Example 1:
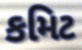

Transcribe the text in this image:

કમિટ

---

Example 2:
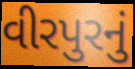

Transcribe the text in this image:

વીરપુરનું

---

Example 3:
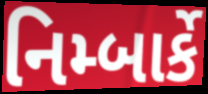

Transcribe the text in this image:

નિમ્બાર્કે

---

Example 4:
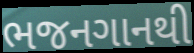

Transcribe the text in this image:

ભજનગાનથી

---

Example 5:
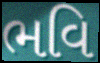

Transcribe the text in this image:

ભવિ